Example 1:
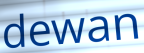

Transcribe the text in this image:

dewan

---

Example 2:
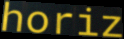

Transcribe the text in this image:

horiz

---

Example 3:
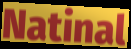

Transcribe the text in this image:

Natinal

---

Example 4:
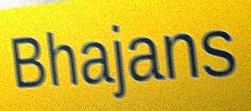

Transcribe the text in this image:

Bhajans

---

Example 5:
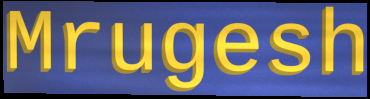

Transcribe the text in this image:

Mrugesh